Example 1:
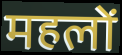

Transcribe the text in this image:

महलों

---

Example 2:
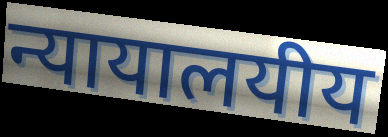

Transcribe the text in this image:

न्यायालयीय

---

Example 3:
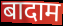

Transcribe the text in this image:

बादाम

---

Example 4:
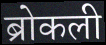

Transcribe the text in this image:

ब्रोकली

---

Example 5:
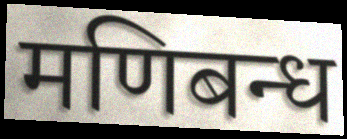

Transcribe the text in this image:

मणिबन्ध